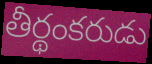
తీర్థంకరుడు